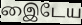
இைடேய